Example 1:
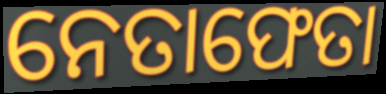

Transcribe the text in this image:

ନେତାଫେତା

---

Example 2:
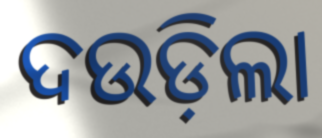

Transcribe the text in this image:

ଦଉଡ଼ିଲା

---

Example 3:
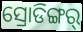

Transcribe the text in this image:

ସ୍ରୋଡିଙ୍ଗର୍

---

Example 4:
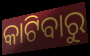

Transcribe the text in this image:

କାଟିବାରୁ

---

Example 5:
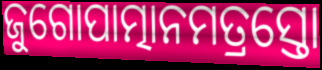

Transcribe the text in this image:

ଜୁଗୋପାତ୍ମାନମତ୍ରସ୍ତୋ